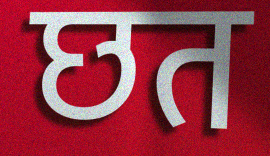
छत